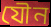
যৌন